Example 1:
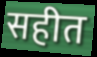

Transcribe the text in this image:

सहीत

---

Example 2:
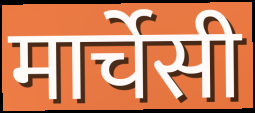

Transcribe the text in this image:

मार्चेसी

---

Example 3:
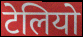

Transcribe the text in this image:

टेलियो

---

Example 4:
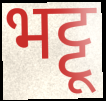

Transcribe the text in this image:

भट्टू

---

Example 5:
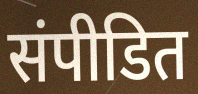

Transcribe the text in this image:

संपीडित